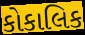
કોકાલિક